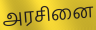
அரசினை